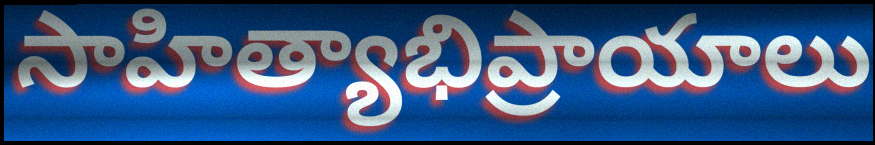
సాహిత్యాభిప్రాయాలు